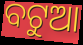
ବଟୁଆ